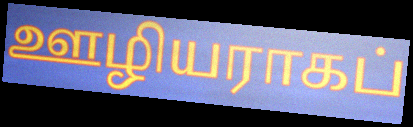
ஊழியராகப்